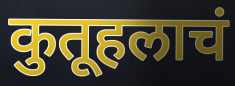
कुतूहलाचं